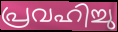
പ്രവഹിച്ചു